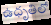
ఉధృతిలో